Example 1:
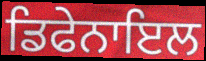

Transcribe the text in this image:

ਡਿਫੇਨਾਇਲ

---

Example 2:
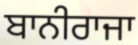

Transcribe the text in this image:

ਬਾਨੀਰਾਜਾ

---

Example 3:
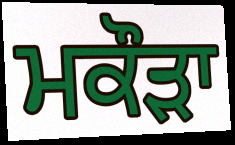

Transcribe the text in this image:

ਮਕੌੜਾ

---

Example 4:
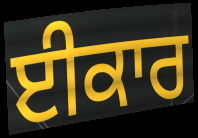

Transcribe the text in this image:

ਈਕਾਰ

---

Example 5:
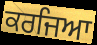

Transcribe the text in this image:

ਕਰਜਿਆ